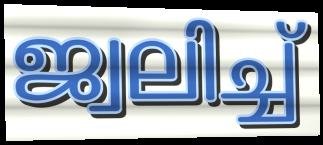
ജ്വലിച്ച്